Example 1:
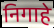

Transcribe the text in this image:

निगाहे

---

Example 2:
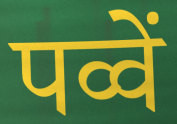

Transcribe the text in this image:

पव्वें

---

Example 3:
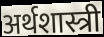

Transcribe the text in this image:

अर्थशास्त्री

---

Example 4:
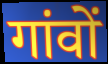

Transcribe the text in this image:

गांवों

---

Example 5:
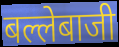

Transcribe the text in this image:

बल्लेबाजी